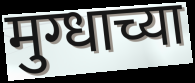
मुग्धाच्या